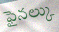
ఫైనల్కు